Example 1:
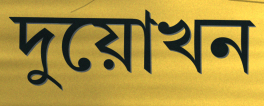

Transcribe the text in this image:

দুয়োখন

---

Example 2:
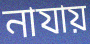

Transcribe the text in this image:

নাযায়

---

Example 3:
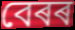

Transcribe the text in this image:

বেৰৰ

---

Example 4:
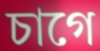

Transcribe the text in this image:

চাগে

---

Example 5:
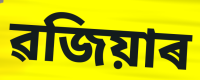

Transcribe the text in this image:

ৱজিয়াৰ